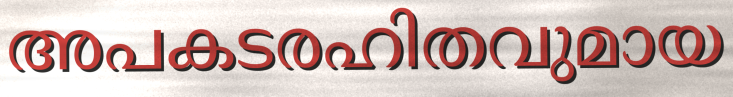
അപകടരഹിതവുമായ